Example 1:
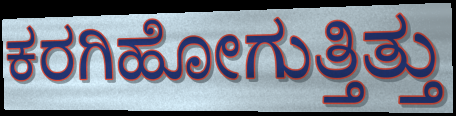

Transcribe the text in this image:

ಕರಗಿಹೋಗುತ್ತಿತ್ತು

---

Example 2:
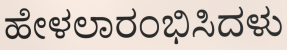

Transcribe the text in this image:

ಹೇಳಲಾರಂಭಿಸಿದಳು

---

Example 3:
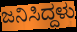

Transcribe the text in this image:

ಜನಿಸಿದ್ದಳು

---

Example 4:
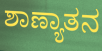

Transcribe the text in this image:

ಶಾಣ್ಯಾತನ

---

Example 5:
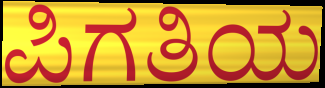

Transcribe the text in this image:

ಪಿಗತಿಯ